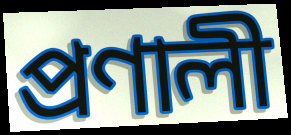
প্রণালী